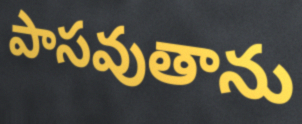
పాసవుతాను